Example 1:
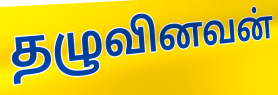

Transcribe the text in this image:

தழுவினவன்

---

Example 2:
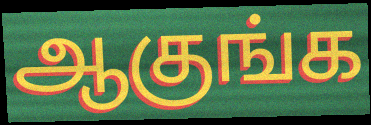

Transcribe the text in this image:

ஆகுங்க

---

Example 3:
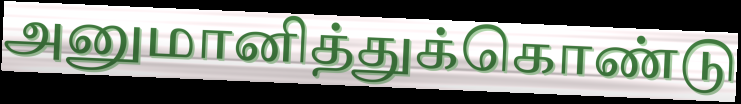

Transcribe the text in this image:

அனுமானித்துக்கொண்டு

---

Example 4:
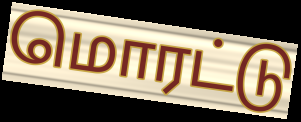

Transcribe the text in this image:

மொரட்டு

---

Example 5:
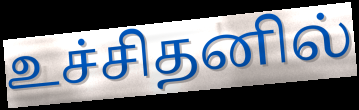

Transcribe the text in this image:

உச்சிதனில்